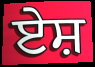
ਏਸ਼